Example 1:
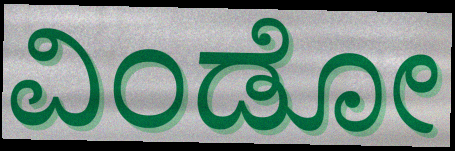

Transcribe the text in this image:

ವಿಂಡೋ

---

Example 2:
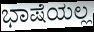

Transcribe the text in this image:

ಭಾಷೆಯಲ್ಲ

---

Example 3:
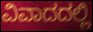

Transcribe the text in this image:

ವಿವಾದದಲ್ಲಿ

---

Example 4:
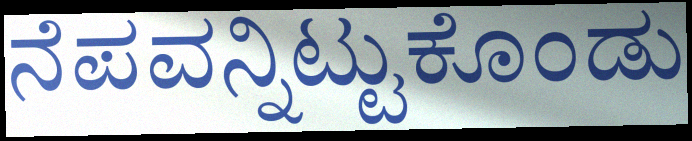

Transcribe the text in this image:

ನೆಪವನ್ನಿಟ್ಟುಕೊಂಡು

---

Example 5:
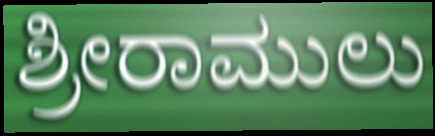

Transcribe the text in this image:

ಶ್ರೀರಾಮುಲು